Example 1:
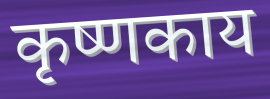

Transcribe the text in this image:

कृष्णकाय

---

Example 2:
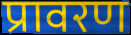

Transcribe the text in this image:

प्रावरण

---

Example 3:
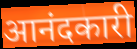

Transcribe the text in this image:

आनंदकारी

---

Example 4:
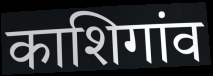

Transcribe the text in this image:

काशिगांव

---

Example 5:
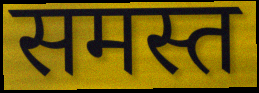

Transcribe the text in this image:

समस्त